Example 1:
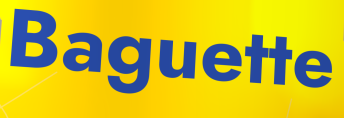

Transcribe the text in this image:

Baguette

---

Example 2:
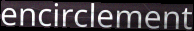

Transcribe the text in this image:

encirclement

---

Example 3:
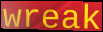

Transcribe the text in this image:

wreak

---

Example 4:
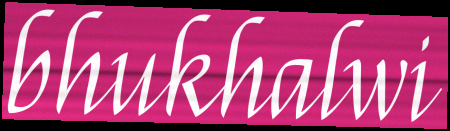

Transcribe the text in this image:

bhukhalwi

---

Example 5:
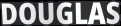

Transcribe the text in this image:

DOUGLAS